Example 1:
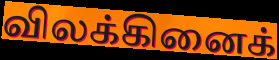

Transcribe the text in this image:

விலக்கினைக்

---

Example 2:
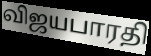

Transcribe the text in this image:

விஜயபாரதி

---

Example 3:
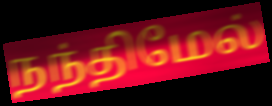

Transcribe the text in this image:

நந்திமேல்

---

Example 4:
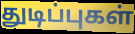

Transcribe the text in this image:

துடிப்புகள்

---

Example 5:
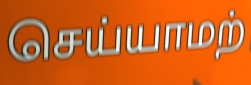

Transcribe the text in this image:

செய்யாமற்